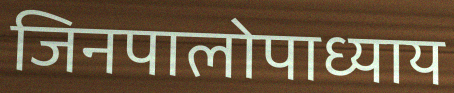
जिनपालोपाध्याय